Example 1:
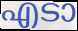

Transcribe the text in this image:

എടാ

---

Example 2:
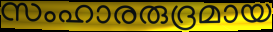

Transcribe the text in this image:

സംഹാരരുദ്രമായ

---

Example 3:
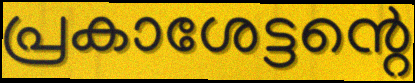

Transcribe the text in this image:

പ്രകാശേട്ടന്റെ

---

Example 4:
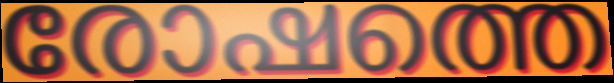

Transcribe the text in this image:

രോഷത്തെ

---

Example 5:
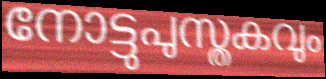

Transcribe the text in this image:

നോട്ടുപുസ്തകവും